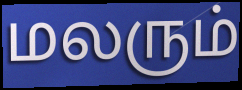
மலரும்